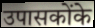
उपासकोंके